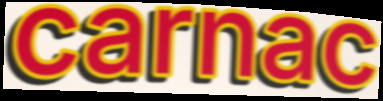
carnac